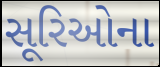
સૂરિઓના